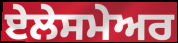
ਏਲੇਸਮੇਅਰ